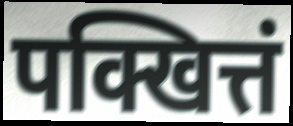
पक्खित्तं